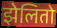
झेलितो